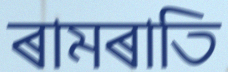
ৰামৰাতি